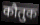
कौतुक